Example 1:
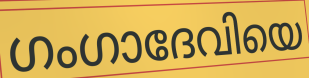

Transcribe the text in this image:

ഗംഗാദേവിയെ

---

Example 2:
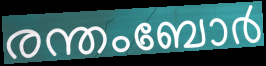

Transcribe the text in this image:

രന്തംബോർ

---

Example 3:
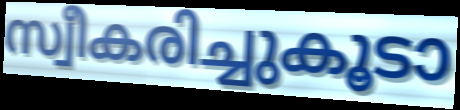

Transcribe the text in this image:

സ്വീകരിച്ചുകൂടാ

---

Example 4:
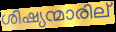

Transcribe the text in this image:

ശിഷ്യന്മാരില്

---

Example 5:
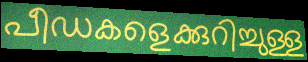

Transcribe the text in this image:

പീഡകളെക്കുറിച്ചുള്ള